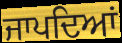
ਜਾਪਦਿਆਂ